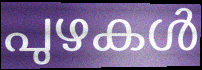
പുഴകൾ